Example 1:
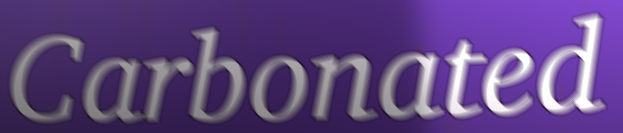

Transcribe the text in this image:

Carbonated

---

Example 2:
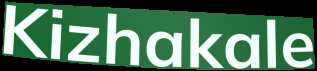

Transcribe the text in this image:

Kizhakale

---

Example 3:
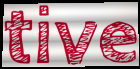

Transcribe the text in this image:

tive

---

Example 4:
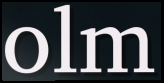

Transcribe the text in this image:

olm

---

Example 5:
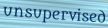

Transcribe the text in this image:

unsupervised